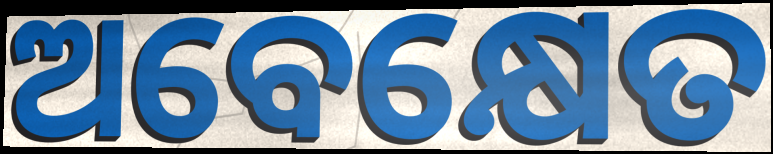
ଅବେକ୍ଷେତ